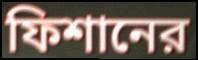
ফিশানের